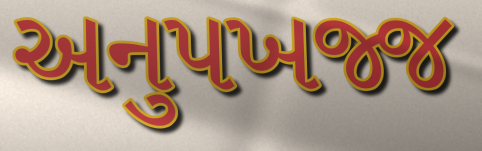
અનુપખજ્જ